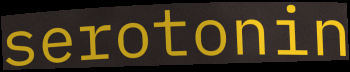
serotonin